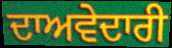
ਦਾਅਵੇਦਾਰੀ